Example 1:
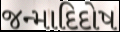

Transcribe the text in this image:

જન્માદિદોષ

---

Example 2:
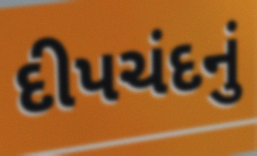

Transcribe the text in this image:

દીપચંદનું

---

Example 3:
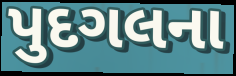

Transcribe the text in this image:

પુદગલના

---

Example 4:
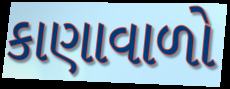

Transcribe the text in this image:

કાણાવાળો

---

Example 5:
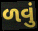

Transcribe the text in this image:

ળવું